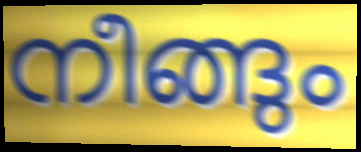
നീങ്ങും